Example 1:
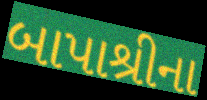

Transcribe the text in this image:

બાપાશ્રીના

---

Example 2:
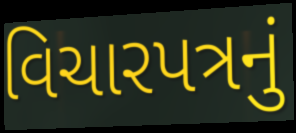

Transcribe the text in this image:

વિચારપત્રનું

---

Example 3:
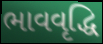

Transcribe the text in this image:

ભાવવૃદ્ધિ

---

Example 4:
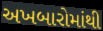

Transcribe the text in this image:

અખબારોમાંથી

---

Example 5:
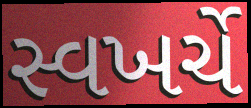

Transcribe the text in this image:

સ્વખર્ચે